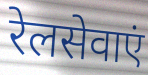
रेलसेवाएं